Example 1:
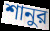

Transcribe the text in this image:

শানুর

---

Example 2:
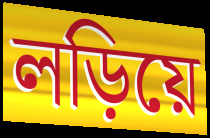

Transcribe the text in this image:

লড়িয়ে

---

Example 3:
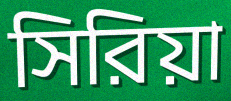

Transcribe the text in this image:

সিরিয়া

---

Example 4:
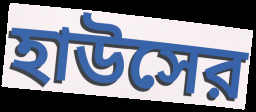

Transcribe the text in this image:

হাউসের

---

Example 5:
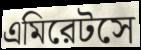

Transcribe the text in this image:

এমিরেটসে